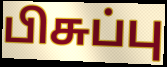
பிசுப்பு